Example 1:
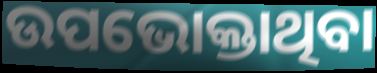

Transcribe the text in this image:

ଉପଭୋକ୍ତାଥିବା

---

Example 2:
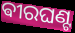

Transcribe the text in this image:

ଵୀରଘଣ୍ଟ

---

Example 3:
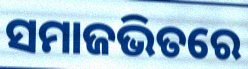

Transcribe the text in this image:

ସମାଜଭିତରେ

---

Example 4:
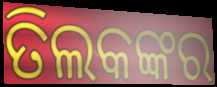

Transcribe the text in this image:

ତିଲକଙ୍କର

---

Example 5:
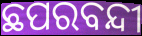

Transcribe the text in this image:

ଛପରବନ୍ଦୀ